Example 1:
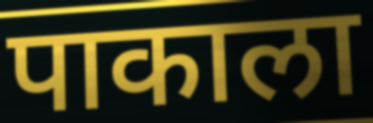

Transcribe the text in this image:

पाकाला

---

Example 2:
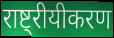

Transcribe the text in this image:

राष्ट्रीयीकरण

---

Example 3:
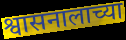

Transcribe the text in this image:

श्वासनालाच्या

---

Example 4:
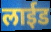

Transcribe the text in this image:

लाईड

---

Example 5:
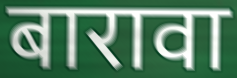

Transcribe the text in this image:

बारावा